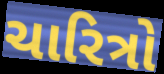
ચારિત્રો